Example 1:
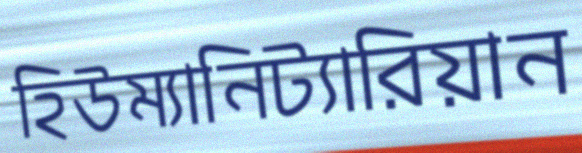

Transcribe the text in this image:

হিউম্যানিট্যারিয়ান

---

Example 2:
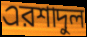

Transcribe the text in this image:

এরশাদুল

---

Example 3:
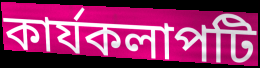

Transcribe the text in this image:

কার্যকলাপটি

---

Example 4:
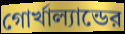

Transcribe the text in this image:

গোর্খাল্যান্ডের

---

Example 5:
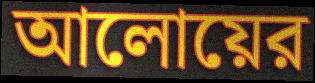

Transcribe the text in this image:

আলোয়ের